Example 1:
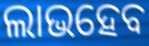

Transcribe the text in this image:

ଲାଭହେବ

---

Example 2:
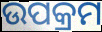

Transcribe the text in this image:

ଉପକ୍ରମ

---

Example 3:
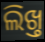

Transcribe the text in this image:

ଲିଖ୍ତ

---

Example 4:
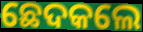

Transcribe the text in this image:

ଛେଦକଲେ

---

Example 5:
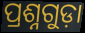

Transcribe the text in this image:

ପ୍ରଶ୍ନଗୁଡ଼ା